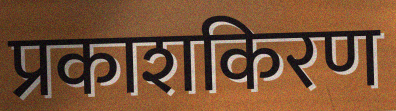
प्रकाशकिरण